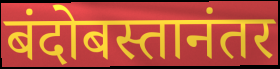
बंदोबस्तानंतर